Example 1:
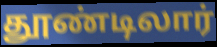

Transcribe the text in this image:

தூண்டிலார்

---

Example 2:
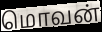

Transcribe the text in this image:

மொவன்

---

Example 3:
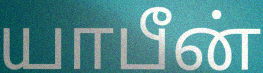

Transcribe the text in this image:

யாபீன்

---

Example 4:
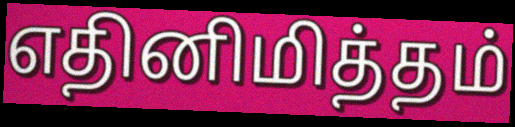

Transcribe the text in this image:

எதினிமித்தம்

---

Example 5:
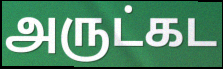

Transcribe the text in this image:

அருட்கட